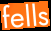
fells